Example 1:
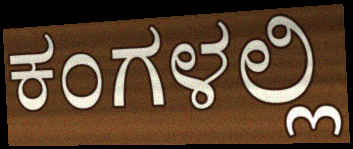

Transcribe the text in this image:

ಕಂಗಳಲ್ಲಿ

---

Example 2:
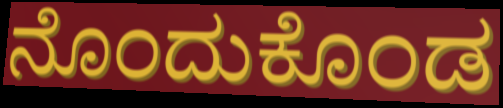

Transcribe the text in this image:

ನೊಂದುಕೊಂಡ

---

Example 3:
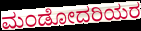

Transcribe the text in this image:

ಮಂಡೋದರಿಯರ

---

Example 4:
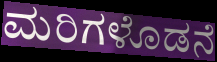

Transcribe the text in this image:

ಮರಿಗಳೊಡನೆ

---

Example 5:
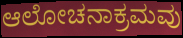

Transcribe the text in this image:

ಆಲೋಚನಾಕ್ರಮವು